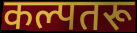
कल्पतरू